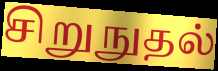
சிறுநுதல்